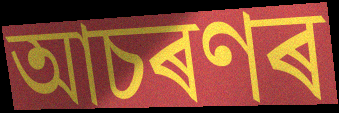
আচৰণৰ